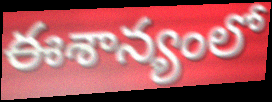
ఈశాన్యంలో